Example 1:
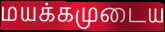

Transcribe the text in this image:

மயக்கமுடைய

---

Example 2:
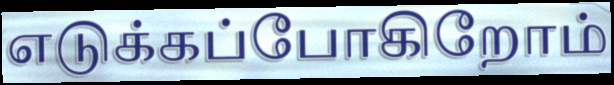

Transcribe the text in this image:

எடுக்கப்போகிறோம்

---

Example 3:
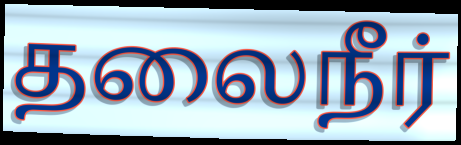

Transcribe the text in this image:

தலைநீர்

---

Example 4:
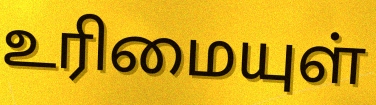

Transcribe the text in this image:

உரிமையுள்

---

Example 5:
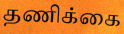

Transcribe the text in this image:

தணிக்கை